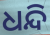
ଧନ୍ଦି